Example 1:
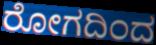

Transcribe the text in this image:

ರೋಗದಿಂದ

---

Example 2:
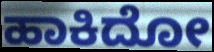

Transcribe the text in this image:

ಹಾಕಿದೋ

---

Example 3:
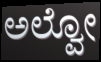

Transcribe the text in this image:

ಅಲ್ವೋ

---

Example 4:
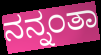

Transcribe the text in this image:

ನನ್ನಂತಾ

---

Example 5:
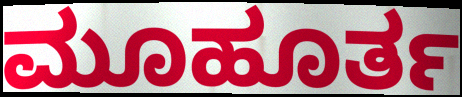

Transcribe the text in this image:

ಮೂಹೂರ್ತ